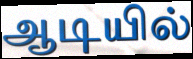
ஆடியில்